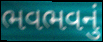
ભવભવનું